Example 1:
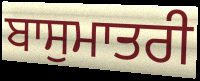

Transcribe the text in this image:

ਬਾਸੁਮਾਤਰੀ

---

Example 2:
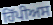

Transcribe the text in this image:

ਹਿੱਪੀਅਸ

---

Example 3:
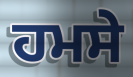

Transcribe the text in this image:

ਹਮਸੇ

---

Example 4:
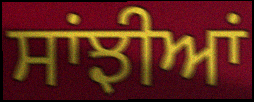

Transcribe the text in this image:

ਸਾਂਝੀਆਂ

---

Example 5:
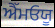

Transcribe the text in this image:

ਐੱਮਓਯੂ